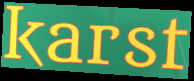
karst